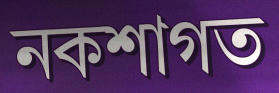
নকশাগত